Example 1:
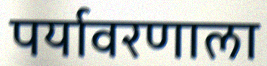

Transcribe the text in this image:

पर्यावरणाला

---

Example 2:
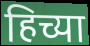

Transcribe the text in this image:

हिच्या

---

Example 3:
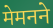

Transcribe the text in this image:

मेमनने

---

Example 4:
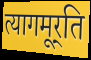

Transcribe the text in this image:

त्यागमूर्ति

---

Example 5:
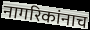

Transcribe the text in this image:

नागरिकांनाच